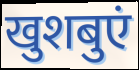
खुशबुएं